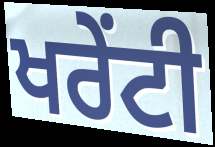
ਖਰੇਂਟੀ